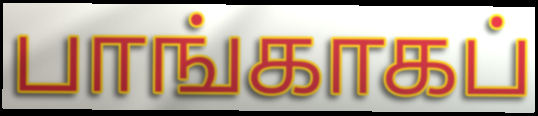
பாங்காகப்